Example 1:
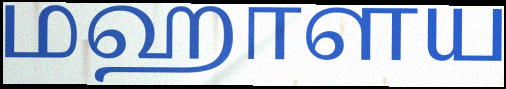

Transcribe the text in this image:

மஹாளய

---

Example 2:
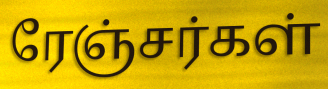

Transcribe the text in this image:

ரேஞ்சர்கள்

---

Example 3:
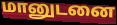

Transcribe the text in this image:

மானுடனை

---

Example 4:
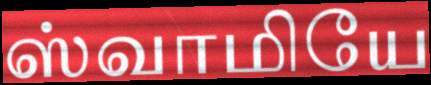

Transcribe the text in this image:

ஸ்வாமியே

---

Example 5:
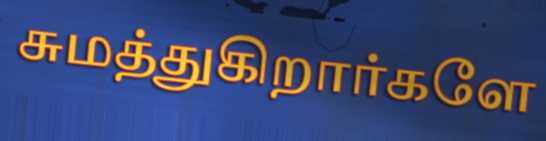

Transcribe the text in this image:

சுமத்துகிறார்களே